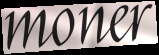
moner